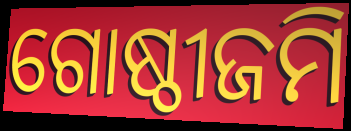
ଗୋଷ୍ଠୀଜମି